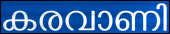
കരവാണി